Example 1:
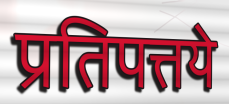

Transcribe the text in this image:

प्रतिपत्तये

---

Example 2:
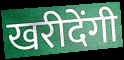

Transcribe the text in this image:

खरीदेंगी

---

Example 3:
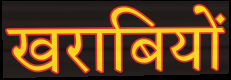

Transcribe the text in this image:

खराबियों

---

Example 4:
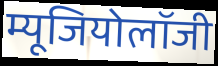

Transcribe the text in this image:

म्यूजियोलॉजी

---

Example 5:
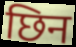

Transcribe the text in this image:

छिन